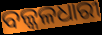
ବଳ୍କଳଧାରୀ